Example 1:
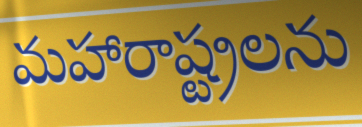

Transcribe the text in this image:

మహారాష్ట్రలను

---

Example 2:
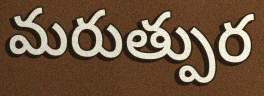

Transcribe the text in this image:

మరుత్పుర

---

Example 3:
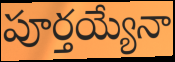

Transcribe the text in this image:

పూర్తయ్యేనా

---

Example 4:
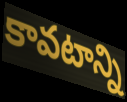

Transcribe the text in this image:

కావటాన్ని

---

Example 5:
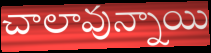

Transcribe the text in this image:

చాలావున్నాయి